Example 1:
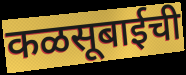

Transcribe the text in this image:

कळसूबाईची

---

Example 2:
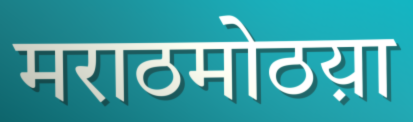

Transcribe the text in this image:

मराठमोठय़ा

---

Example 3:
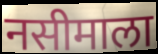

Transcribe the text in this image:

नसीमाला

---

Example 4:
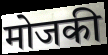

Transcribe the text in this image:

मोजकी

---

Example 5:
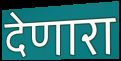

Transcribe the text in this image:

देणारा